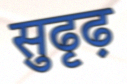
सुढृढ़